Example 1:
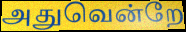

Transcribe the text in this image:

அதுவென்றே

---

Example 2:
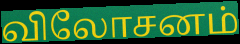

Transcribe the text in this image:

விலோசனம்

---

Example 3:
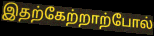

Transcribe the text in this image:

இதற்கேற்றாற்போல்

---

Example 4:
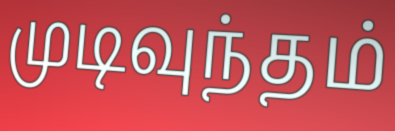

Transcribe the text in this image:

முடிவுந்தம்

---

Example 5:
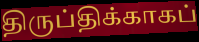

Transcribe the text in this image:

திருப்திக்காகப்